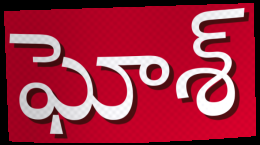
ఘోశ్